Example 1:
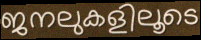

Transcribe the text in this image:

ജനലുകളിലൂടെ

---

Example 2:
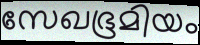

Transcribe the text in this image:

സേഖഭൂമിയം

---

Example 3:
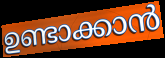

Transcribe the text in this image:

ഉണ്ടാക്കാൻ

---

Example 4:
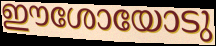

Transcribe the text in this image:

ഈശോയോടു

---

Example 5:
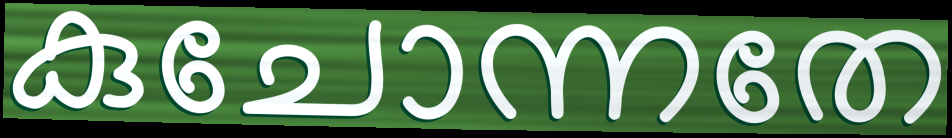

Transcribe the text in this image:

കുചോന്നതേ